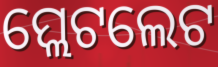
ପ୍ଲେଟଲେଟ